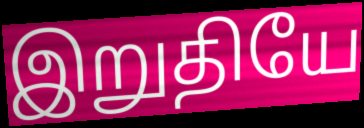
இறுதியே